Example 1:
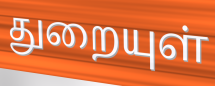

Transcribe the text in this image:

துறையுள்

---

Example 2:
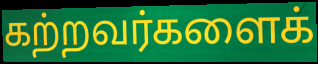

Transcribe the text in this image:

கற்றவர்களைக்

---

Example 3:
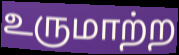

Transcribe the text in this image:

உருமாற்ற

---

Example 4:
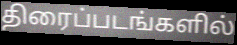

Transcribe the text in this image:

திரைப்படங்களில்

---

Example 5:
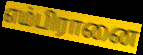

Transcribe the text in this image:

எம்பிரானை